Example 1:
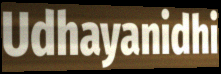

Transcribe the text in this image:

Udhayanidhi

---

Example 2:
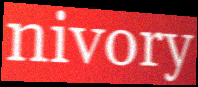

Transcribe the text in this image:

nivory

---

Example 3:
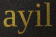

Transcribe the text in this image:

ayil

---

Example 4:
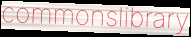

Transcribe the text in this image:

commonslibrary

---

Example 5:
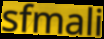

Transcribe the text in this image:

sfmali